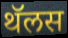
थॅलस